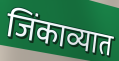
जिंकाव्यात